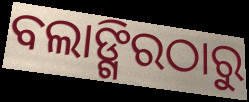
ବଲାଙ୍ଗିରଠାରୁ